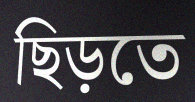
ছিড়তে